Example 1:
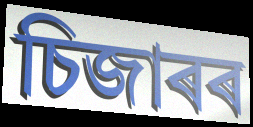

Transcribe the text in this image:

চিজাৰৰ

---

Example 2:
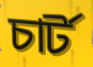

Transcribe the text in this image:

চাৰ্ট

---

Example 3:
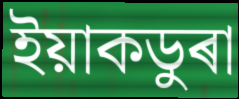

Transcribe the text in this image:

ইয়াকডুৰা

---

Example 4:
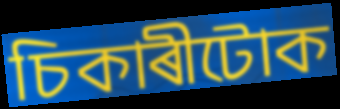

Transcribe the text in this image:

চিকাৰীটোক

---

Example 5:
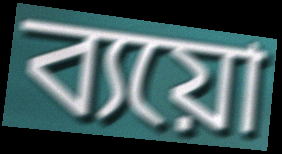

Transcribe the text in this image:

ব্যয়ো